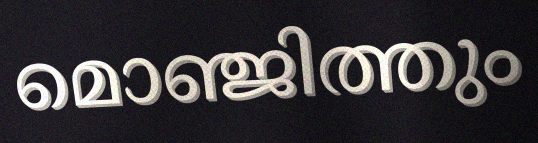
മൊഞ്ജിത്തും